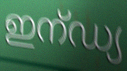
ഇന്ഡ്യ